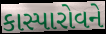
કાસ્પારોવને